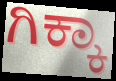
ಗಿಕ್ಕಾ